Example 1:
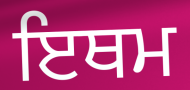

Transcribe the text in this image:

ਇਥਮ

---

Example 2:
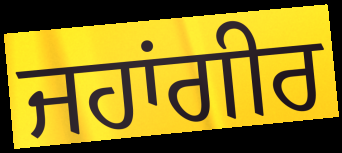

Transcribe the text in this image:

ਜਹਾਂਗੀਰ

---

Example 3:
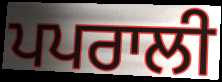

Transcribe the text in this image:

ਪਪਰਾਲੀ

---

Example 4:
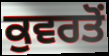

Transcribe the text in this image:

ਕੁਵਰਤੋਂ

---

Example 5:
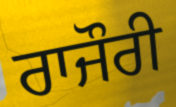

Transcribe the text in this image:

ਰਾਜੌਰੀ